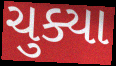
ચુક્યા